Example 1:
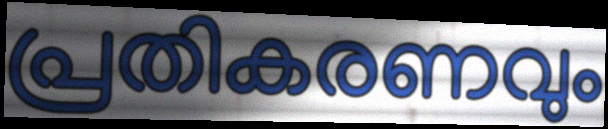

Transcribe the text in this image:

പ്രതികരണവും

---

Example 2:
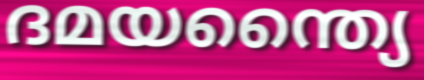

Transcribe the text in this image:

ദമയന്ത്യൈ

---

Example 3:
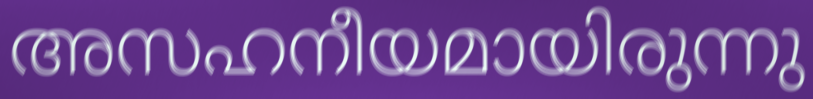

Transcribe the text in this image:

അസഹനീയമായിരുന്നു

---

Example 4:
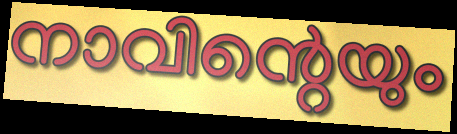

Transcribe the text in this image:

നാവിന്റെയും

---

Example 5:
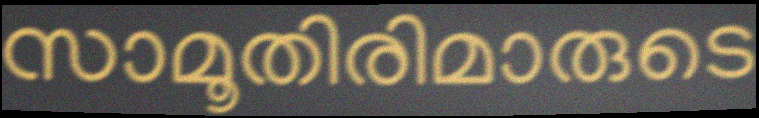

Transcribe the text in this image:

സാമൂതിരിമാരുടെ